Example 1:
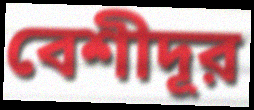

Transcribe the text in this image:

বেশীদূর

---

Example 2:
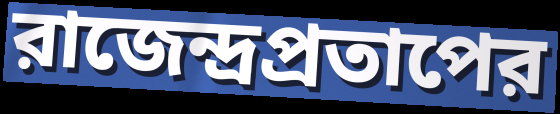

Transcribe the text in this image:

রাজেন্দ্রপ্রতাপের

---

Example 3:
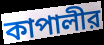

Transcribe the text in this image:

কাপালীর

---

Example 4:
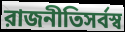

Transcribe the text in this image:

রাজনীতিসর্বস্ব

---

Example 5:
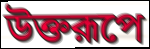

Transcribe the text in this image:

উক্তরূপে